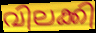
വിലക്കി